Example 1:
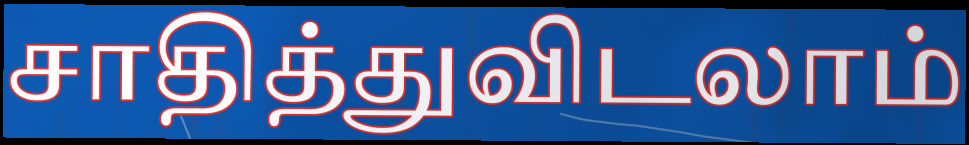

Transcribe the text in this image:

சாதித்துவிடலாம்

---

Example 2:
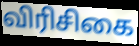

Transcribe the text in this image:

விரிசிகை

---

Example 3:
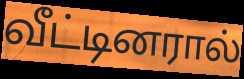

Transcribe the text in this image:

வீட்டினரால்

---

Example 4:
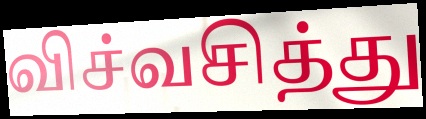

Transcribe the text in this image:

விச்வசித்து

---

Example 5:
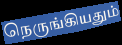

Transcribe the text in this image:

நெருங்கியதும்